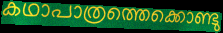
കഥാപാത്രത്തെക്കൊണ്ടു